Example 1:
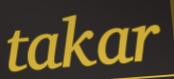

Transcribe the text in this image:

takar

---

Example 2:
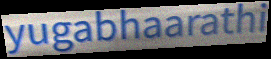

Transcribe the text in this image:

yugabhaarathi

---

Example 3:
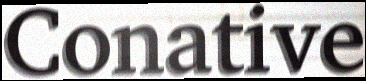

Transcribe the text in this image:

Conative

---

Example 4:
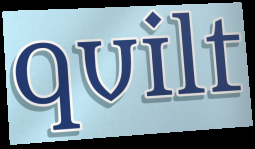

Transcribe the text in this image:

quilt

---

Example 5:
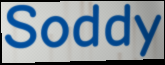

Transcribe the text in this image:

Soddy